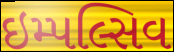
ઇમ્પલ્સિવ